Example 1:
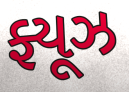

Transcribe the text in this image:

ફ્યૂઝ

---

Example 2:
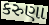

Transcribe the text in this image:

કરુણા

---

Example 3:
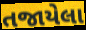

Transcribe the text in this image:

તજાયેલા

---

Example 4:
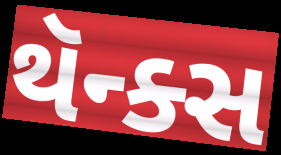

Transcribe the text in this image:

થૅન્ક્સ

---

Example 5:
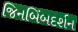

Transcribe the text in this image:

જિનબિંબદર્શન